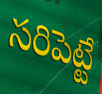
సరిపెట్టే